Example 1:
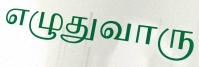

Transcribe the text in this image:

எழுதுவாரு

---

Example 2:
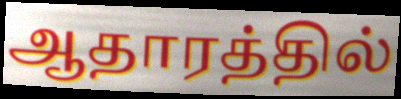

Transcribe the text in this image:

ஆதாரத்தில்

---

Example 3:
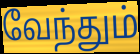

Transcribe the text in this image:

வேந்தும்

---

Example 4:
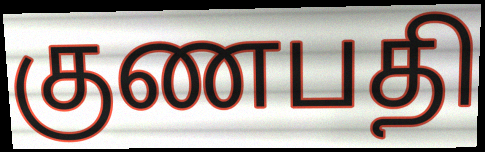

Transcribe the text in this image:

குணபதி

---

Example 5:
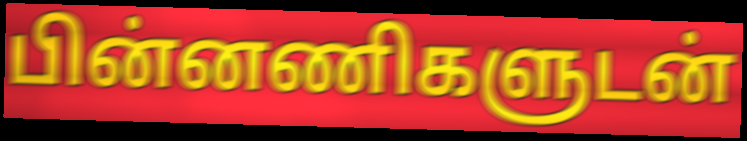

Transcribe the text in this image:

பின்னணிகளுடன்